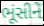
ભૂંસીને